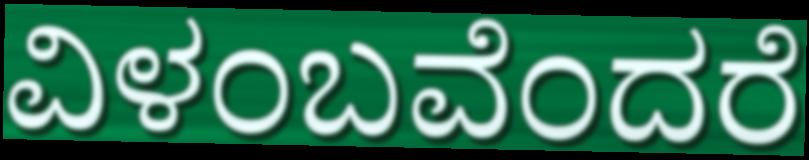
ವಿಳಂಬವೆಂದರೆ